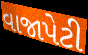
વાજાપેટી